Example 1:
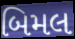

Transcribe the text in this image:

બિમલ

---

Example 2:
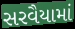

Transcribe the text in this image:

સરવૈયામાં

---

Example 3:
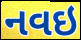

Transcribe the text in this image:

નવઇ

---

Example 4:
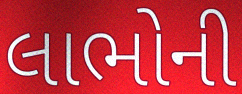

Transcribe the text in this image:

લાભોની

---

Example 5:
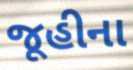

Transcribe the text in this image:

જૂહીના